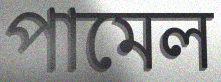
পামেল